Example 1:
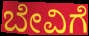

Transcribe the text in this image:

ಬೇವಿಗೆ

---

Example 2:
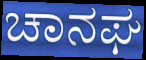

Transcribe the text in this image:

ಚಾನಘ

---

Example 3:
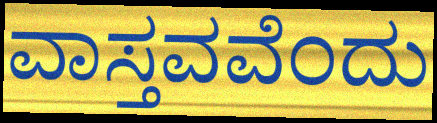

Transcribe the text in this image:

ವಾಸ್ತವವೆಂದು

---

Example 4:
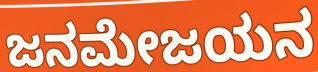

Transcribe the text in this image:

ಜನಮೇಜಯನ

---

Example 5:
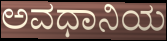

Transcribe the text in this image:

ಅವಧಾನಿಯ